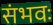
संभवः